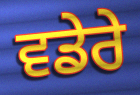
ਵਡੇਰੇ